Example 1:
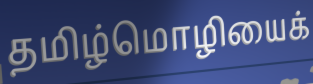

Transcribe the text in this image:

தமிழ்மொழியைக்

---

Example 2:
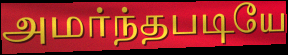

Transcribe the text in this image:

அமர்ந்தபடியே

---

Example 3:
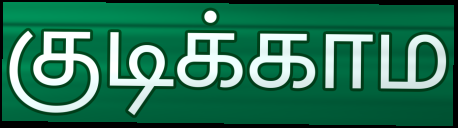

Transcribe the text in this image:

குடிக்காம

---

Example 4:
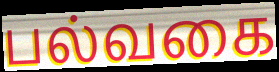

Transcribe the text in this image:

பல்வகை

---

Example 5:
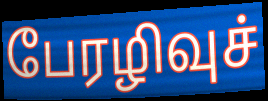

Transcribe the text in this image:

பேரழிவுச்